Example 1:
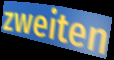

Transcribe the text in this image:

zweiten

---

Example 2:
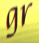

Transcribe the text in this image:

gr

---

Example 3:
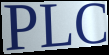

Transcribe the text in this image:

PLC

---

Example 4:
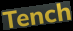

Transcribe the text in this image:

Tench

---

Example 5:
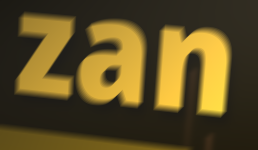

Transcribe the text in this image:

zan